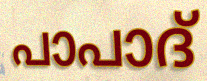
പാപാദ്